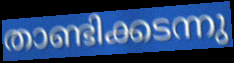
താണ്ടിക്കടന്നു